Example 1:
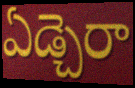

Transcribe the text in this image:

ఏడ్చెరా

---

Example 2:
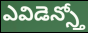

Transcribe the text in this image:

ఎవిడెన్స్తో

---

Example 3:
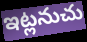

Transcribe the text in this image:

ఇట్లనుచు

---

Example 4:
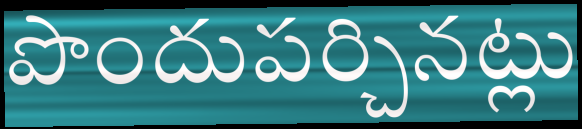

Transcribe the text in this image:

పొందుపర్చినట్లు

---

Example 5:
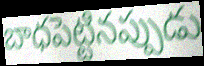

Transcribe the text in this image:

బాధపెట్టినప్పుడు